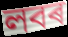
লবৰ